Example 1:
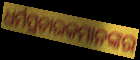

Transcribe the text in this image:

ଧର୍ମପ୍ରଚାରକମାନଙ୍କର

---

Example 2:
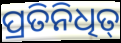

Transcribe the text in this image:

ପ୍ରତିନିଧିତ୍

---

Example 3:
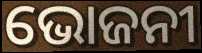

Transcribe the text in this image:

ଭୋଜନୀ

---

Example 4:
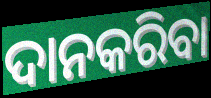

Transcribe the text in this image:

ଦାନକରିବା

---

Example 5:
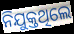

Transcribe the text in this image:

ନିଯୁକ୍ତଥିଲେ